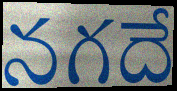
నగదే